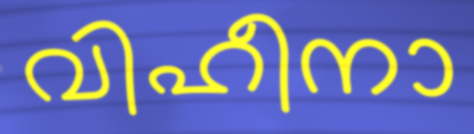
വിഹീനാ